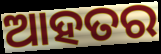
ଆହତର